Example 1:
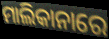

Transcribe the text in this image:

ମାଲିକାନାରେ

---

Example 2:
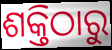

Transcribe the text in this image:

ଶକ୍ତିଠାରୁ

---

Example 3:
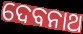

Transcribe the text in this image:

ଦେବନାଥ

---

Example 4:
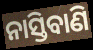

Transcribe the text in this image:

ନାସ୍ତିବାଣି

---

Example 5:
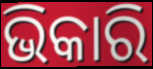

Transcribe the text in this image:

ଭିକାରି